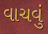
વાચવું